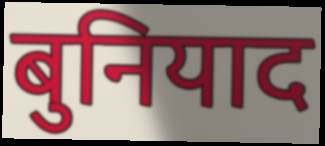
बुनियाद